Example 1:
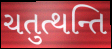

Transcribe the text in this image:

ચતુત્થન્તિ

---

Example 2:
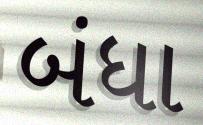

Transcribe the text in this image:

બંધા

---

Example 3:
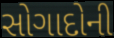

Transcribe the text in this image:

સોગાદોની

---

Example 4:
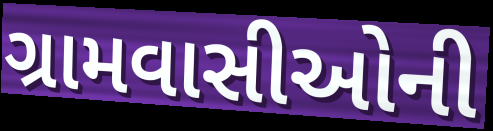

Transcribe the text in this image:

ગ્રામવાસીઓની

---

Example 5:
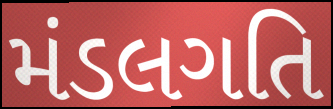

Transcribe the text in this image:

મંડલગતિ